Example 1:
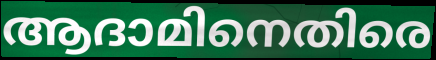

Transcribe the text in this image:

ആദാമിനെതിരെ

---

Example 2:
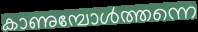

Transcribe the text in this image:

കാണുമ്പോൾത്തന്നെ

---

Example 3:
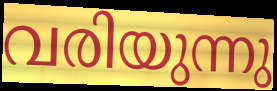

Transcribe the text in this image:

വരിയുന്നു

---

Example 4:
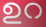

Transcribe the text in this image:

ഉറ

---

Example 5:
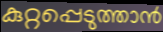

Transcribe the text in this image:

കുറ്റപ്പെടുത്താൻ